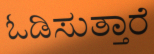
ಓಡಿಸುತ್ತಾರೆ